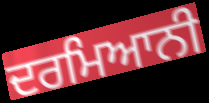
ਦਰਮਿਆਨੀ